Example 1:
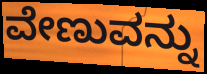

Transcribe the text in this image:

ವೇಣುವನ್ನು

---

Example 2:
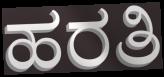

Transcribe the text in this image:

ಹರತಿ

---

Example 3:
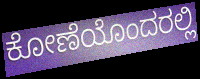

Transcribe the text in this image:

ಕೋಣೆಯೊಂದರಲ್ಲಿ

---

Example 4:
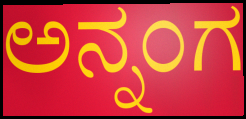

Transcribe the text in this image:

ಅನ್ನಂಗ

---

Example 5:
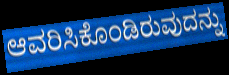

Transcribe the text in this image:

ಆವರಿಸಿಕೊಂಡಿರುವುದನ್ನು